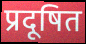
प्रदूषित